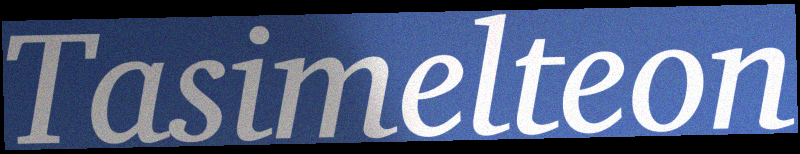
Tasimelteon